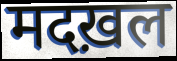
मदख़ल